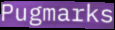
Pugmarks